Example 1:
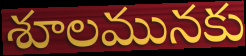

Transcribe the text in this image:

శూలమునకు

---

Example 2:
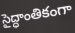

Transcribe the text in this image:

సైద్ధాంతికంగా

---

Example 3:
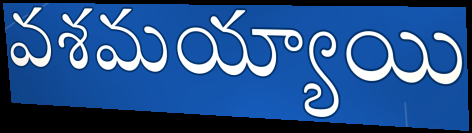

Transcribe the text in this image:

వశమయ్యాయి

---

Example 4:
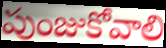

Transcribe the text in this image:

పుంజుకోవాలి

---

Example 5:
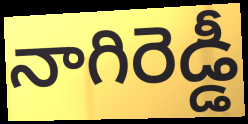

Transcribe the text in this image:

నాగిరెడ్డీ